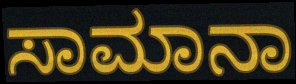
ಸಾಮಾನಾ